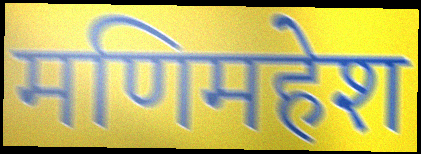
मणिमहेश